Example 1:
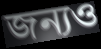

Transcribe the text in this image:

জন্যও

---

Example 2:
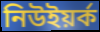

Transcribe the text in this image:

নিউইয়র্ক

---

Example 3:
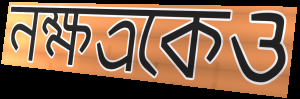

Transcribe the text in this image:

নক্ষত্রকেও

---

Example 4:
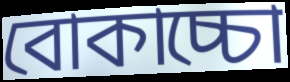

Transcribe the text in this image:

বোকাচ্চো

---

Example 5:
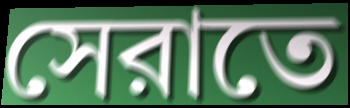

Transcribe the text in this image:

সেরাতে